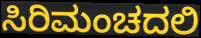
ಸಿರಿಮಂಚದಲಿ